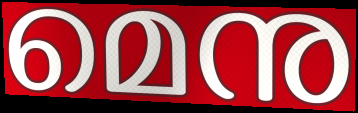
മെനു